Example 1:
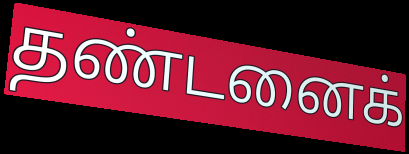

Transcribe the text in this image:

தண்டனைக்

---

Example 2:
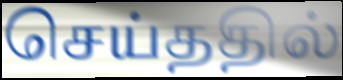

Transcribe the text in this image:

செய்ததில்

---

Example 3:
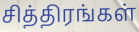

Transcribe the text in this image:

சித்திரங்கள்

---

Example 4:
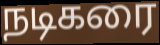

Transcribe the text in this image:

நடிகரை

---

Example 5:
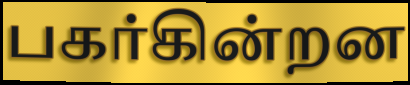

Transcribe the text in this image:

பகர்கின்றன